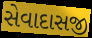
સેવાદાસજી